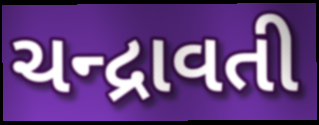
ચન્દ્રાવતી